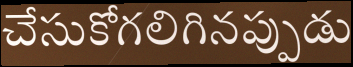
చేసుకోగలిగినప్పుడు